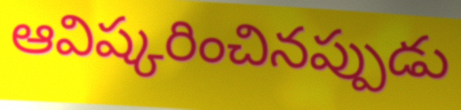
ఆవిష్కరించినప్పుడు